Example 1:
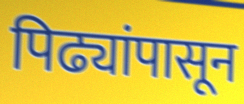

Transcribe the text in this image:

पिढ्यांपासून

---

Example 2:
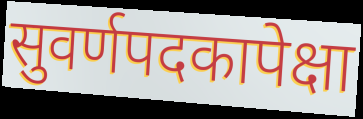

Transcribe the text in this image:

सुवर्णपदकापेक्षा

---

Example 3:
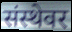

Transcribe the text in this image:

संस्थेवर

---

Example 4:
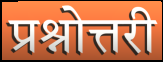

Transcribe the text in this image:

प्रश्नोत्तरी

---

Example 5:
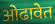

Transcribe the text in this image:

ओढावेत